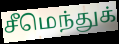
சீமெந்துக்